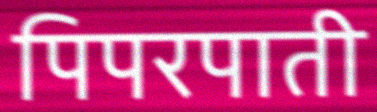
पिपरपाती